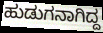
ಹುಡುಗನಾಗಿದ್ದ